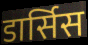
डार्सिस